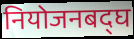
नियोजनबद्घ